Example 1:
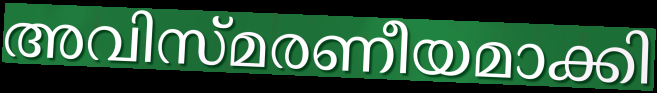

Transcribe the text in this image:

അവിസ്മരണീയമാക്കി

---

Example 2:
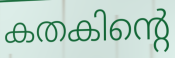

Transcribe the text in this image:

കതകിന്റെ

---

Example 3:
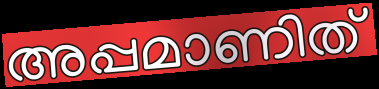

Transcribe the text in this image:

അപ്പമാണിത്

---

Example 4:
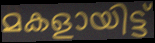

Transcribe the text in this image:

മകളായിട്ട്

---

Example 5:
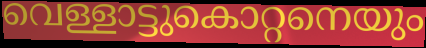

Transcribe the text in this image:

വെള്ളാട്ടുകൊറ്റനെയും